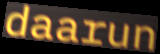
daarun